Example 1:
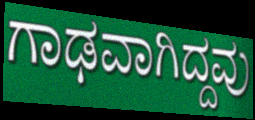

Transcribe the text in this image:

ಗಾಢವಾಗಿದ್ದವು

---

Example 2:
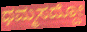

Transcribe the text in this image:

ಧಮ್ಮಸದ್ದೋ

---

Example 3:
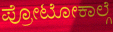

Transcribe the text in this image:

ಪ್ರೋಟೋಕಾಲ್ಗೆ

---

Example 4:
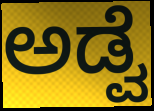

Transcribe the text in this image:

ಅಡ್ವೆ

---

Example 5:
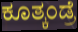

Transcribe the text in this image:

ಕೂತ್ಕಂಡ್ರೆ